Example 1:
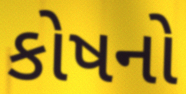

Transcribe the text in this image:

કોષનો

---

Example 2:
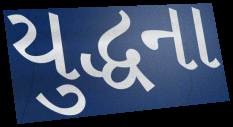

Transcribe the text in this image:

યુદ્ધના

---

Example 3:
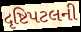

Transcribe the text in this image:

દૃષ્ટિપટલની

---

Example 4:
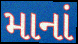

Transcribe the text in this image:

માનાં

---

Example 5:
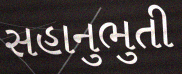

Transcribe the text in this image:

સહાનુભુતી